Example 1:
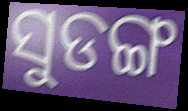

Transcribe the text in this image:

ସୁଡଙ୍ଗ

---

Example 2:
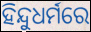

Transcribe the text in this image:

ହିନ୍ଦୁଧର୍ମରେ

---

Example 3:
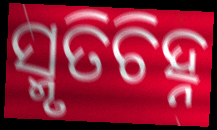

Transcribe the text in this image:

ସ୍ମୃତିଚିହ୍ନ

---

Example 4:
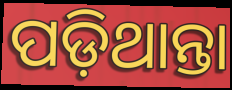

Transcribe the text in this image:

ପଡ଼ିଥାନ୍ତା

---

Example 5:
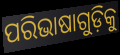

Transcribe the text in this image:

ପରିଭାଷାଗୁଡ଼ିକୁ